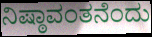
ನಿಷ್ಠಾವಂತನೆಂದು